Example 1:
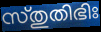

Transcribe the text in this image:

സ്തുതിഭിഃ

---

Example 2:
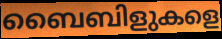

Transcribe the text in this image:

ബൈബിളുകളെ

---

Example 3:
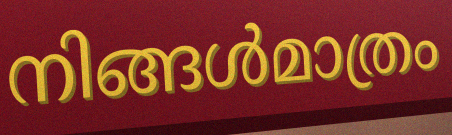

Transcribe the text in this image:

നിങ്ങൾമാത്രം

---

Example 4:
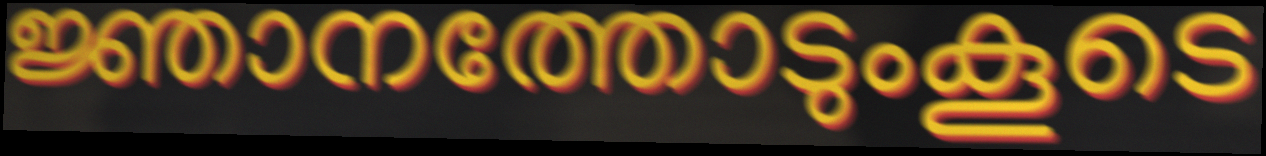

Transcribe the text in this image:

ജ്ഞാനത്തോടുംകൂടെ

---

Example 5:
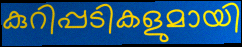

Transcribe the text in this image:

കുറിപ്പടികളുമായി